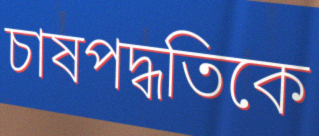
চাষপদ্ধতিকে